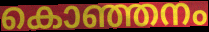
കൊഞ്ഞനം